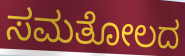
ಸಮತೋಲದ